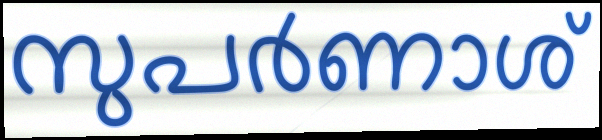
സുപർണാശ്